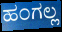
ಹಂಗಲ್ಲ